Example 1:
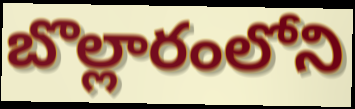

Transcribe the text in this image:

బొల్లారంలోని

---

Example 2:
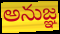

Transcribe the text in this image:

అనుజ్ఞ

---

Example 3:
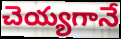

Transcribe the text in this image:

చెయ్యగానే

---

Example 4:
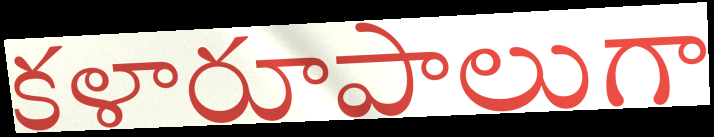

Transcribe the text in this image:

కళారూపాలుగా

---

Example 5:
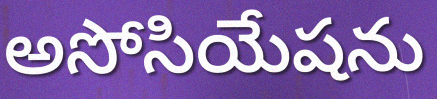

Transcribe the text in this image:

అసోసియేషను